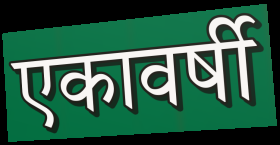
एकावर्षी